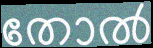
തോൽ